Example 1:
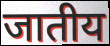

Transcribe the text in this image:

जातीय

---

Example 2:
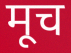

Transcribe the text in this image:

मूच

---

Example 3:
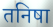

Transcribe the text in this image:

तनिषा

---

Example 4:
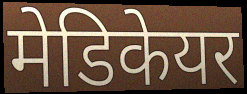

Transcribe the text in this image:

मेडिकेयर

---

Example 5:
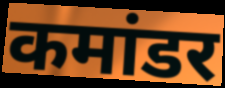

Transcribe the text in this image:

कमांडर